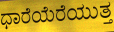
ಧಾರೆಯೆರೆಯುತ್ತ